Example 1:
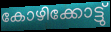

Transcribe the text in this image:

കോഴിക്കോട്ടു്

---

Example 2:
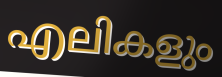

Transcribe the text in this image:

എലികളും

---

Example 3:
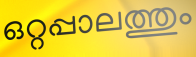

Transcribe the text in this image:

ഒറ്റപ്പാലത്തും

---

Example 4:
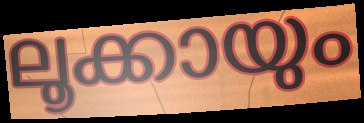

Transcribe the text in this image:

ലൂക്കായും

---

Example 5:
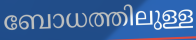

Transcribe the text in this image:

ബോധത്തിലുള്ള